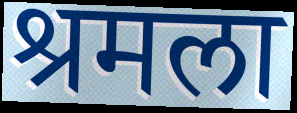
श्रमला